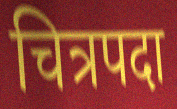
चित्रपदा